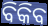
ବିକିବ